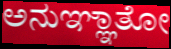
ಅನುಞ್ಞಾತೋ